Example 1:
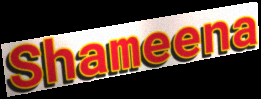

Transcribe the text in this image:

Shameena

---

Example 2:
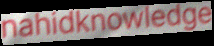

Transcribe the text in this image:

nahidknowledge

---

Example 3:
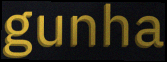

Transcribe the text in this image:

gunha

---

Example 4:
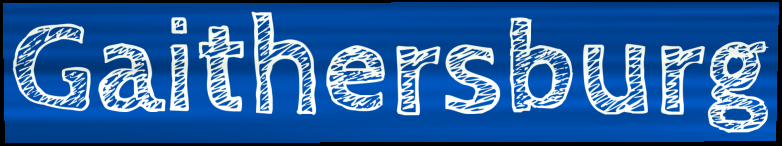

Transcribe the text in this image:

Gaithersburg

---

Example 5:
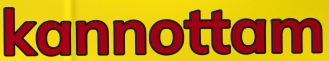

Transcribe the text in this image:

kannottam